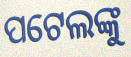
ପଟେଲଙ୍କୁ